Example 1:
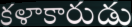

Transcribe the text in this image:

కళాకారుడు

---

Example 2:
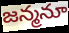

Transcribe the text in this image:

జన్మనూ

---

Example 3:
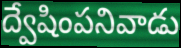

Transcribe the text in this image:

ద్వేషింపనివాడు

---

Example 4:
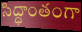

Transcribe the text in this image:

సిద్ధాంతంగా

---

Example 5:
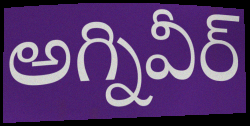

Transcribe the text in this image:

అగ్నివీర్